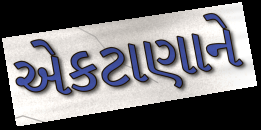
એકટાણાને